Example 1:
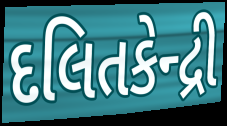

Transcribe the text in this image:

દલિતકેન્દ્રી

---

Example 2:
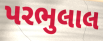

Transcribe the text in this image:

પરભુલાલ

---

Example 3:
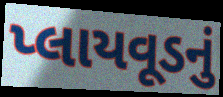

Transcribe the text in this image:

પ્લાયવૂડનું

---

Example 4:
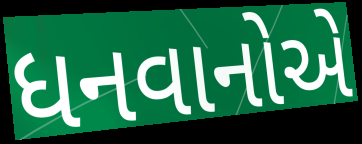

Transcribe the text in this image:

ધનવાનોએ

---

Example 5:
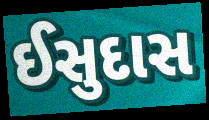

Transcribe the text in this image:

ઈસુદાસ